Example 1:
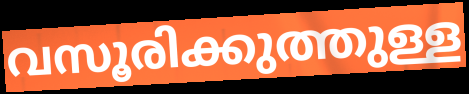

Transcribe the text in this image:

വസൂരിക്കുത്തുള്ള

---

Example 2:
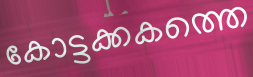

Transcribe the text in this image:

കോട്ടക്കകത്തെ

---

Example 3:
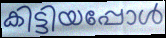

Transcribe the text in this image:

കിട്ടിയപ്പോൾ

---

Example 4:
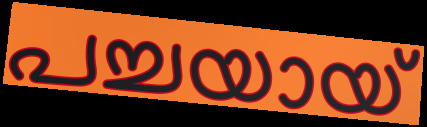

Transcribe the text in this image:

പച്ചയായ്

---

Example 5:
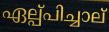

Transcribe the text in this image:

ഏല്പ്പിച്ചാല്